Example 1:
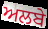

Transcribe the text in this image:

ਅਲਬੇ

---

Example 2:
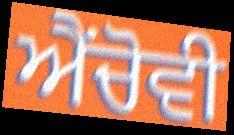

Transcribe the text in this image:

ਐਂਚੋਵੀ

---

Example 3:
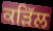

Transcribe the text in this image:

ਕੜਿੱਲ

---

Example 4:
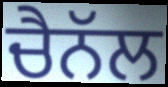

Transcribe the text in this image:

ਚੈਨੱਲ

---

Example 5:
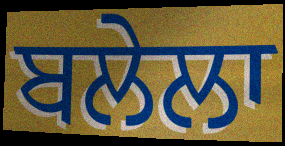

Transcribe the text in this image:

ਬਲੇਲਾ